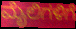
ಮೈಲಿಗಳಿಗೆ